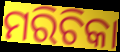
ମରିଚିକା